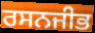
ਰਸਨਜੀਭ